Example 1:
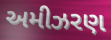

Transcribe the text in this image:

અમીઝરણ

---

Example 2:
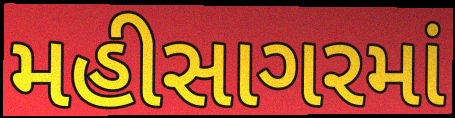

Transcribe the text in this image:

મહીસાગરમાં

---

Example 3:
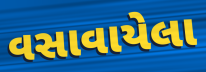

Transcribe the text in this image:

વસાવાયેલા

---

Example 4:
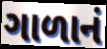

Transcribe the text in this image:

ગાળાનં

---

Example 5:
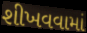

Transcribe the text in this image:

શીખવવામાં